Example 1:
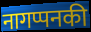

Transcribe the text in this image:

नागप्पनकी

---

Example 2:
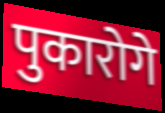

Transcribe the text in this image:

पुकारोगे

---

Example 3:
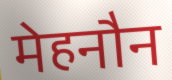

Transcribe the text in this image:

मेहनौन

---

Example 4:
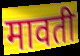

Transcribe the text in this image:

मावती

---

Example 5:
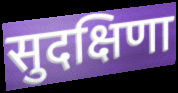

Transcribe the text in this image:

सुदक्षिणा